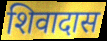
शिवादास